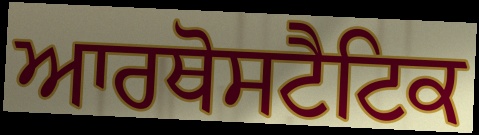
ਆਰਥੋਸਟੈਟਿਕ